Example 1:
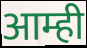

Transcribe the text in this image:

आम्‍ही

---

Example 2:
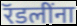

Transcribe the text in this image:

रॅडलींना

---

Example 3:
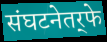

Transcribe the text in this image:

संघटनेतर्फे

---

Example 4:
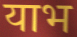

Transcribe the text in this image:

याभ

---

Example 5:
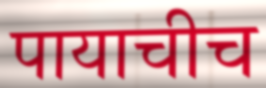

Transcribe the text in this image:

पायाचीच